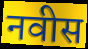
नवीस